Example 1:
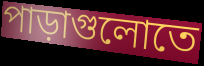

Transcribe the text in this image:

পাড়াগুলোতে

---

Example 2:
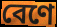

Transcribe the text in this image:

বেণে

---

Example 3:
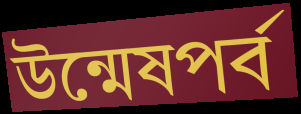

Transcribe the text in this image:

উন্মেষপর্ব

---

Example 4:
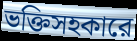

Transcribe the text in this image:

ভক্তিসহকারে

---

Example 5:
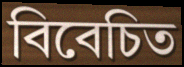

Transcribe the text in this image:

বিবেচিত